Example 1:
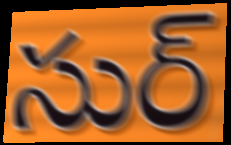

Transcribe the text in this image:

సుర్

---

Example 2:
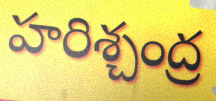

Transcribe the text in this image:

హరిశ్చంద్ర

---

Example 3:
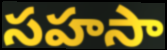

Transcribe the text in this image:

సహసా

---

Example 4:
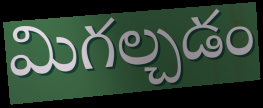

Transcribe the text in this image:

మిగల్చడం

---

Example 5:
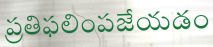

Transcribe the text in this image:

ప్రతిఫలింపజేయడం